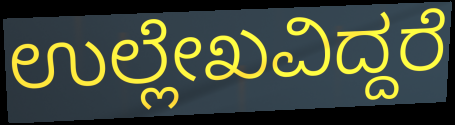
ಉಲ್ಲೇಖವಿದ್ದರೆ